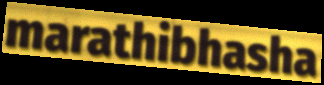
marathibhasha